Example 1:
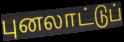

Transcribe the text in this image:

புனலாட்டுப்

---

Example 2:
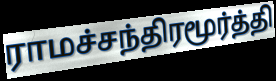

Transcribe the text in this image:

ராமச்சந்திரமூர்த்தி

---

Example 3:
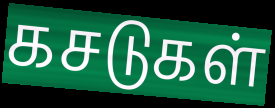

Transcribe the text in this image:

கசடுகள்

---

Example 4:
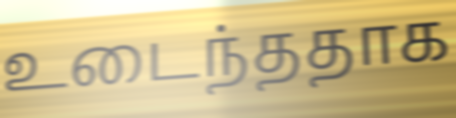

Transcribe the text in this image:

உடைந்ததாக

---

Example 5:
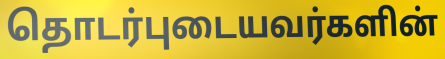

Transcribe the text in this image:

தொடர்புடையவர்களின்